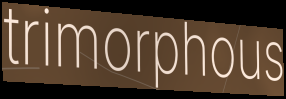
trimorphous